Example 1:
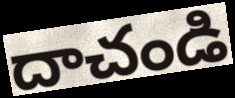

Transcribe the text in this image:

దాచండి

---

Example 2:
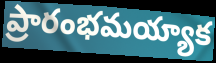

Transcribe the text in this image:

ప్రారంభమయ్యాక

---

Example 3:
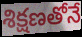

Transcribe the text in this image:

శిక్షణతోనే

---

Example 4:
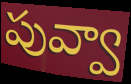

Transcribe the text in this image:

పువ్వా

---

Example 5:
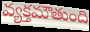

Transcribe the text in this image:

వ్యక్తమౌతుంది